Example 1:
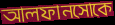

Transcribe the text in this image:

আলফানসোকে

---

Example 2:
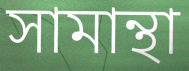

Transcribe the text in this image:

সামান্থা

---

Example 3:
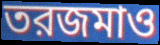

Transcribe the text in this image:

তরজমাও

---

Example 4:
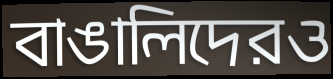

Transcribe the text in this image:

বাঙালিদেরও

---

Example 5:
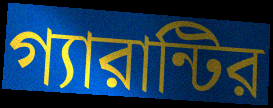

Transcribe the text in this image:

গ্যারান্টির